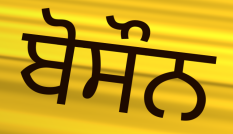
ਬੋਸੌਨ